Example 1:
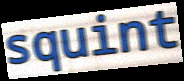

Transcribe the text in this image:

squint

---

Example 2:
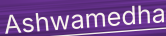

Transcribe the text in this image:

Ashwamedha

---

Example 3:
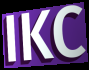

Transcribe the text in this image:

IKC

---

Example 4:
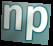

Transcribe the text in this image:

np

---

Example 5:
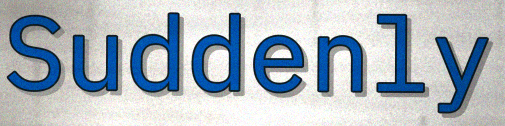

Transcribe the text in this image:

Suddenly